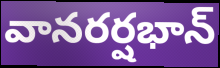
వానరర్షభాన్